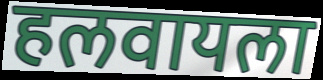
हलवायला